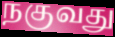
நகுவது